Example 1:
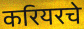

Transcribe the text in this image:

करियरचे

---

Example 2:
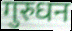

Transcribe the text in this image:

गुरुधन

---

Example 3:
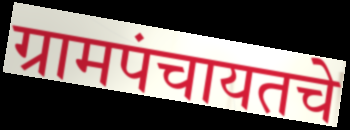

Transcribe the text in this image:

ग्रामपंचायतचे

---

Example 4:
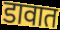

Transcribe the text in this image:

डावात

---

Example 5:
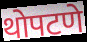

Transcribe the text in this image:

थोपटणे